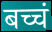
बच्चं